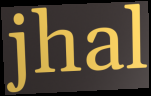
jhal